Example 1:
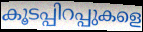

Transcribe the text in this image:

കൂടപ്പിറപ്പുകളെ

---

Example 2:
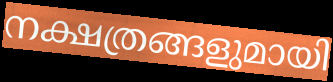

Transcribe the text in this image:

നക്ഷത്രങ്ങളുമായി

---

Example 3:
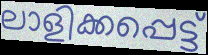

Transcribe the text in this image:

ലാളിക്കപ്പെട്ട്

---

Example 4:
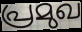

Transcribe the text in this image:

പ്രമുഖ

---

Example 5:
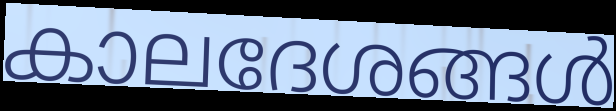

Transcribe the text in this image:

കാലദേശങ്ങൾ